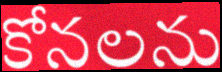
కోనలను